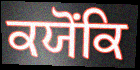
ਕਯੋਂਕਿ